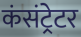
कंसंट्रेटर